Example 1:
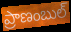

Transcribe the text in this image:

ప్రాణంబుల్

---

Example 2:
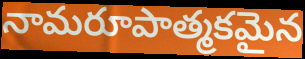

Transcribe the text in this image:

నామరూపాత్మకమైన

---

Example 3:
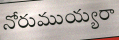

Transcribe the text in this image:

నోరుముయ్యరా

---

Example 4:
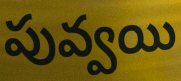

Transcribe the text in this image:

పువ్వయి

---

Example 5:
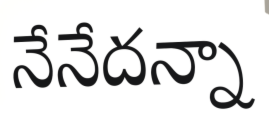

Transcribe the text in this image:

నేనేదన్నా